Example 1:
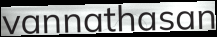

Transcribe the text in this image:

vannathasan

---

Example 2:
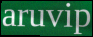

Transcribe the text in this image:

aruvip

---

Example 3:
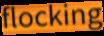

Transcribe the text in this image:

flocking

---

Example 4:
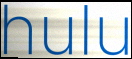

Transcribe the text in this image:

hulu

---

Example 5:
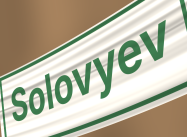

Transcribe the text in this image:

Solovyev